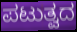
ಪಟುತ್ವದ